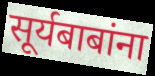
सूर्यबाबांना